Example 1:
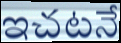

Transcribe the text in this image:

ఇచటనే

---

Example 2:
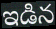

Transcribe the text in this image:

ఇడిన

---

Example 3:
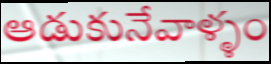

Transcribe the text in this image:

ఆడుకునేవాళ్ళం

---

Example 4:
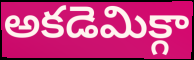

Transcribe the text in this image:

అకడెమిక్గా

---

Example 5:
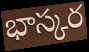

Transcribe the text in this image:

భాస్కర